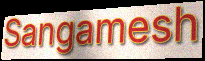
Sangamesh